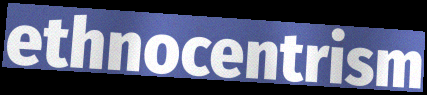
ethnocentrism